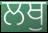
ਲਥੁ